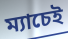
ম্যাচেই